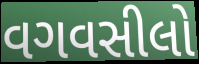
વગવસીલો